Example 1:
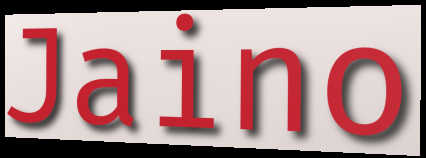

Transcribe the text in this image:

Jaino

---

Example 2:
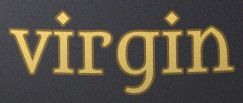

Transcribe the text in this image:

virgin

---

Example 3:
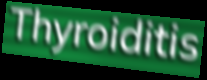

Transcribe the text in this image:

Thyroiditis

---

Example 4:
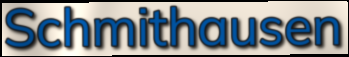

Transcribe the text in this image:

Schmithausen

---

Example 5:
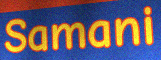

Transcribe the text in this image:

Samani